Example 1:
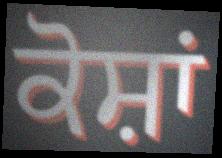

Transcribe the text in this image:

ਕੋਸ਼ਾਂ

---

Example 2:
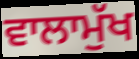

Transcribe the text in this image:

ਵਾਲਾਮੁੱਖ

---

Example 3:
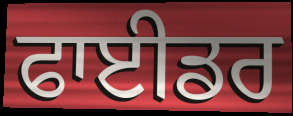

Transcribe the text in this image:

ਫਾਈਡਰ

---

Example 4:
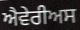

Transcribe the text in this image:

ਐਵੇਰੀਅਸ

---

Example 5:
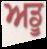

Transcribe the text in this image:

ਅਡੂ